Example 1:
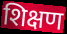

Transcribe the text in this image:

शिक्षण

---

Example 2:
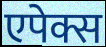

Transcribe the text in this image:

एपेक्स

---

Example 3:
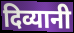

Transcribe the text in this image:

दिव्यानी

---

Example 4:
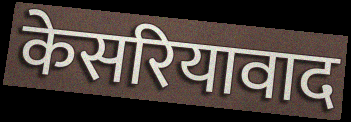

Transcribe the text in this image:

केसरियावाद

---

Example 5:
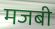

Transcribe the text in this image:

मजबी